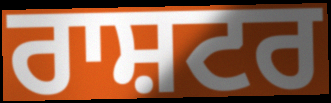
ਰਾਸ਼ਟਰ